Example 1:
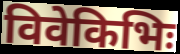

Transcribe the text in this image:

विवेकिभिः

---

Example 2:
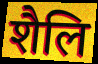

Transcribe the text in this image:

शैलि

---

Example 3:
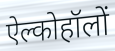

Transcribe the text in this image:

ऐल्कोहॉलों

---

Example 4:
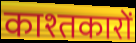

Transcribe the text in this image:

काश्तकारों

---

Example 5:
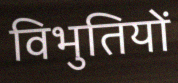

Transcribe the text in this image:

विभुतियों